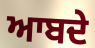
ਆਬਦੇ